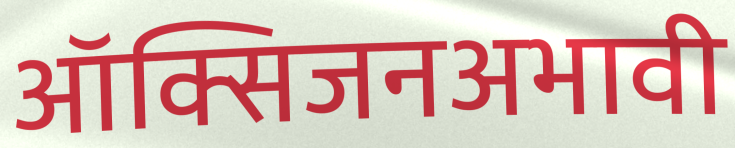
ऑक्सिजनअभावी